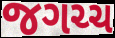
જગચ્ચ